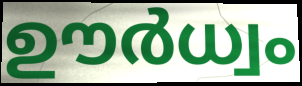
ഊർധ്വം